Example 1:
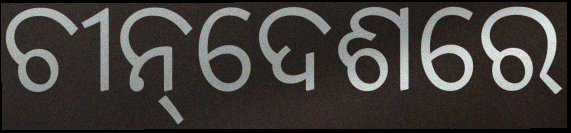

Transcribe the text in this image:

ଚୀନ୍‌ଦେଶରେ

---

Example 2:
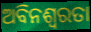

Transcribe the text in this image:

ଅବିନଶ୍ୱରତା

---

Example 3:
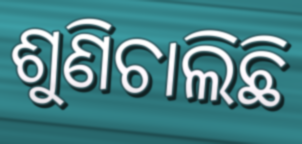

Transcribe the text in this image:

ଶୁଣିଚାଲିଛି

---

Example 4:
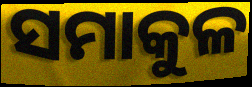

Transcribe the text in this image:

ସମାକୁଳ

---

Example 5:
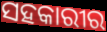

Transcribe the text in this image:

ସହକାରୀର